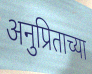
अनुप्रिताच्या